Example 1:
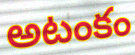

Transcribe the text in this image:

అటంకం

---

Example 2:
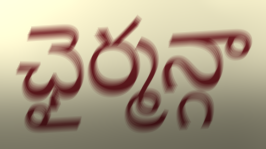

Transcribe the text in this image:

ఛైర్మన్గా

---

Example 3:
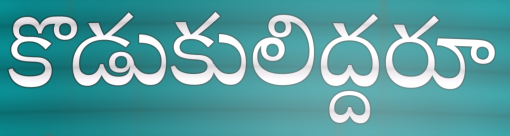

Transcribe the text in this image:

కొడుకులిద్దరూ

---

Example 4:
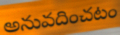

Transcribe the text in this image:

అనువదించటం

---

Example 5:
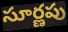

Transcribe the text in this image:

సూర్ణపు